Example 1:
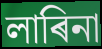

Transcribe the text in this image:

লাৰিনা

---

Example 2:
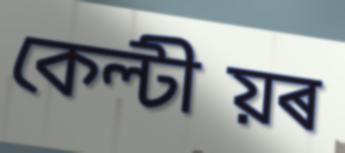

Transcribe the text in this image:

কেল্টীয়ৰ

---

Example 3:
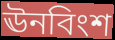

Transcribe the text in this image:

ঊনবিংশ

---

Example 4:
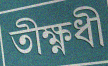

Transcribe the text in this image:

তীক্ষ্ণধী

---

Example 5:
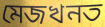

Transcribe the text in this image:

মেজখনত